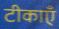
टीकाएँ